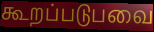
கூறப்படுபவை